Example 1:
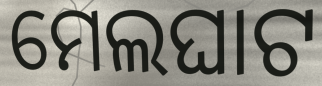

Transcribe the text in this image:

ମେଲଘାଟ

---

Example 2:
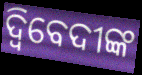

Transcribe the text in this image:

ଦ୍ବିବେଦୀଙ୍କ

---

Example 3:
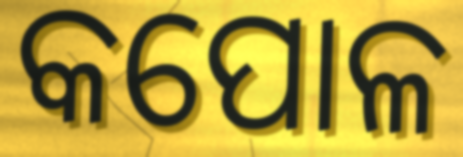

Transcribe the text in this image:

କପୋଳ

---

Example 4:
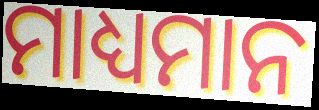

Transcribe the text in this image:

ମାଧ୍ଯମାନ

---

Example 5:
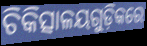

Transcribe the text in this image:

ଚିକିତ୍ସାଳୟଗୁଡ଼ିକରେ